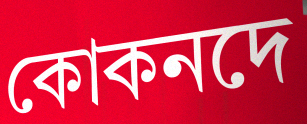
কোকনদে